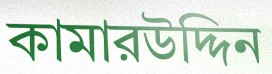
কামারউদ্দিন